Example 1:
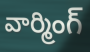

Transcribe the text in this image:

వార్మింగ్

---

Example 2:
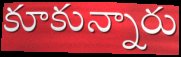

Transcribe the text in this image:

కూకున్నారు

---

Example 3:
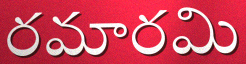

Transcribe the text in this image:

రమారమి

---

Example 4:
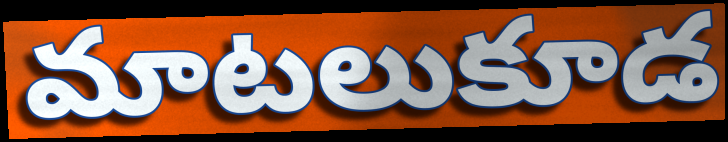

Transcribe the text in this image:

మాటలుకూడ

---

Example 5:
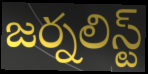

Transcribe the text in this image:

జర్నలిస్ట్